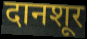
दानशूर